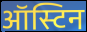
ऑस्टिन